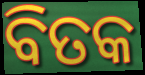
ବିତକ